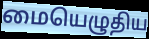
மையெழுதிய